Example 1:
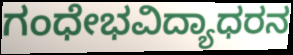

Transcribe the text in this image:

ಗಂಧೇಭವಿದ್ಯಾಧರನ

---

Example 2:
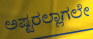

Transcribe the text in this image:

ಅಷ್ಟರಲ್ಲಾಗಲೇ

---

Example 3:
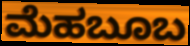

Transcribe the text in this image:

ಮೆಹಬೂಬ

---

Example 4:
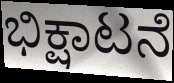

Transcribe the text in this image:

ಭಿಕ್ಷಾಟನೆ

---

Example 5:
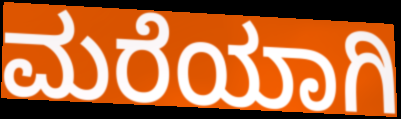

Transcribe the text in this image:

ಮರೆಯಾಗಿ